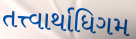
તત્ત્વાર્થાધિગમ